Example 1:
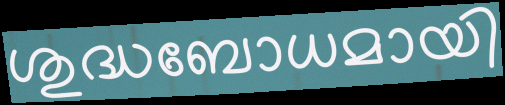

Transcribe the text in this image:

ശുദ്ധബോധമായി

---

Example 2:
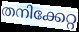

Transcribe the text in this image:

തനിക്കേറ്റ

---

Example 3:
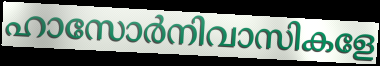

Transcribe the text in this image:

ഹാസോർനിവാസികളേ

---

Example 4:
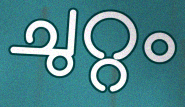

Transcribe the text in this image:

ചുറ്റം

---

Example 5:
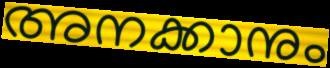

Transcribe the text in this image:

അനക്കാനും